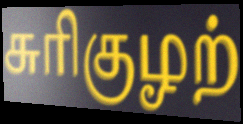
சுரிகுழற்